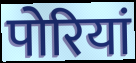
पोरियां